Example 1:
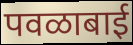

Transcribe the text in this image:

पवळाबाई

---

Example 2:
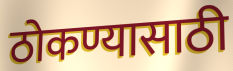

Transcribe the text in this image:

ठोकण्यासाठी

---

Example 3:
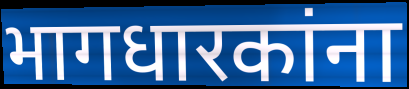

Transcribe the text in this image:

भागधारकांना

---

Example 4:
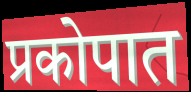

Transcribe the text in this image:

प्रकोपात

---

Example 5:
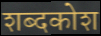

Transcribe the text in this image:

शब्दकोश